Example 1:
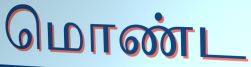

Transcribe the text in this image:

மொண்ட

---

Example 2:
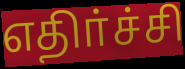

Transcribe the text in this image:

எதிர்ச்சி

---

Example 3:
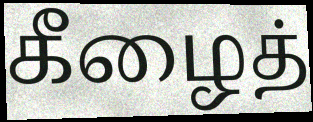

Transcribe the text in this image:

கீழைத்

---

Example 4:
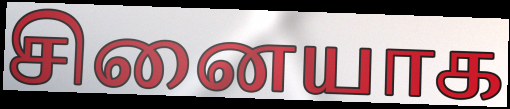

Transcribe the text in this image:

சினையாக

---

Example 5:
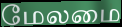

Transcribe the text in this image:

மேலமை